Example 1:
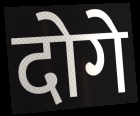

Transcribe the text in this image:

दोगे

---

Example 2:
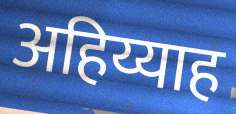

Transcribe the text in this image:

अहिय्याह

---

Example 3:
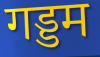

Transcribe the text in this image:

गड्डम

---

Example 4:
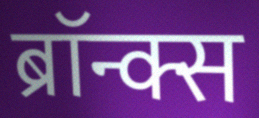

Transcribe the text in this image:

ब्रॉन्क्स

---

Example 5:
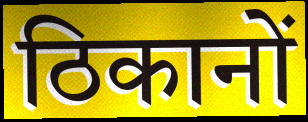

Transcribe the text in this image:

ठिकानों